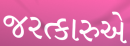
જરત્કારુએ